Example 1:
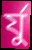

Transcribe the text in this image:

র্যু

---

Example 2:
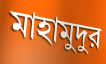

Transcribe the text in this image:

মাহামুদুর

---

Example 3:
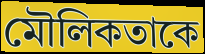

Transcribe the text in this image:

মৌলিকতাকে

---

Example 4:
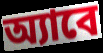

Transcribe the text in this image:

অ্যাবে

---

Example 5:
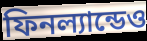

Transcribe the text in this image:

ফিনল্যান্ডেও